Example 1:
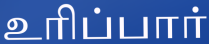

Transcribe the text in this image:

உரிப்பார்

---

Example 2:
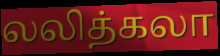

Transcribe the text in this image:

லலித்கலா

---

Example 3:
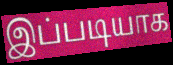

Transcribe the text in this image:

இப்படியாக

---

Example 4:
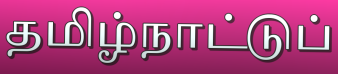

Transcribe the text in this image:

தமிழ்நாட்டுப்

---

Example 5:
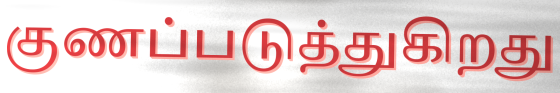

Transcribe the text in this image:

குணப்படுத்துகிறது